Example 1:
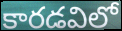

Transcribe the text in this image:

కారడవిలో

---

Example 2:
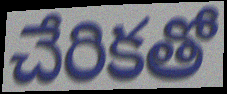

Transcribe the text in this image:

చేరికతో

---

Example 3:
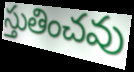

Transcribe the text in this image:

స్తుతించవు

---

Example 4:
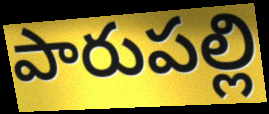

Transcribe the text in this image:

పారుపల్లి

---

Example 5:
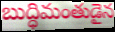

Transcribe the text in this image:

బుద్ధిమంతుడైన